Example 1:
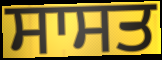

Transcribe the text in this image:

ਸਾਸਤ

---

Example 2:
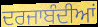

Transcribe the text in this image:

ਦਰਜਾਬੰਦੀਆਂ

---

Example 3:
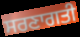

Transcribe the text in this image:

ਸਰਣਾਗਤੀ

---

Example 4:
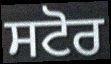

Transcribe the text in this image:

ਸਟੋਰ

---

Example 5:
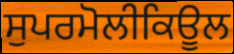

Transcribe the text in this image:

ਸੁਪਰਮੋਲੀਕਿਊਲ